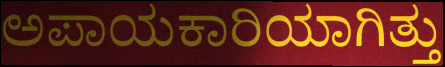
ಅಪಾಯಕಾರಿಯಾಗಿತ್ತು